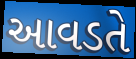
આવડતે